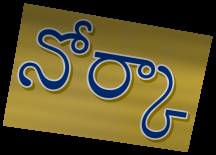
నోర్కా